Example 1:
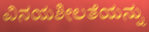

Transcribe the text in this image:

ವಿನಯಶೀಲತೆಯನ್ನು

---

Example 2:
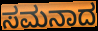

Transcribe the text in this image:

ಸಮನಾದ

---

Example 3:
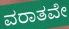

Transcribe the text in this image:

ವರಾತವೇ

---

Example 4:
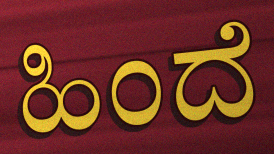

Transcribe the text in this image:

ಹಿಂದೆ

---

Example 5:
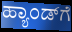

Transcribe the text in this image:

ಹ್ಯಾಂಡ್‌ಗೆ